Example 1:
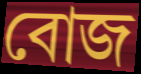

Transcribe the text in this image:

বোজ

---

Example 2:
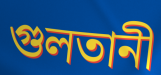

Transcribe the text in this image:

গুলতানী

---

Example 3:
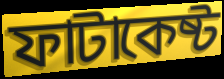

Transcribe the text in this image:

ফাটাকেষ্ট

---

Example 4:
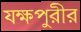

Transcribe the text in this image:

যক্ষপুরীর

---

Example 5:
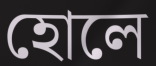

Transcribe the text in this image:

হোলে